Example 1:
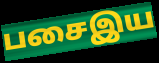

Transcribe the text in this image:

பசைஇய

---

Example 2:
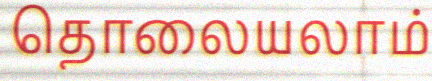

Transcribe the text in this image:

தொலையலாம்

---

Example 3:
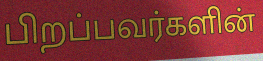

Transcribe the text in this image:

பிறப்பவர்களின்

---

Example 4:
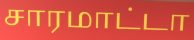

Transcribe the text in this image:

சாரமாட்டா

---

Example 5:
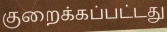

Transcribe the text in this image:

குறைக்கப்பட்டது